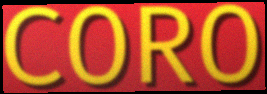
CORO